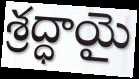
శ్రద్ధాయై